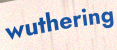
wuthering